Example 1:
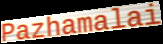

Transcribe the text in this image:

Pazhamalai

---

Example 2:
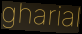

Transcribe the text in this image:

gharial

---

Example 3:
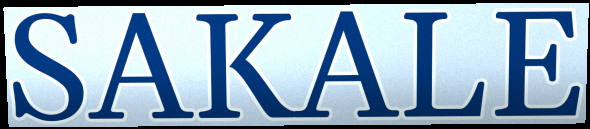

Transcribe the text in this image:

SAKALE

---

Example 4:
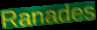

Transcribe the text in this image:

Ranades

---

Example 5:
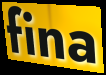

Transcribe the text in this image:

fina